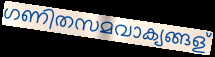
ഗണിതസമവാക്യങ്ങള്